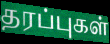
தரப்புகள்